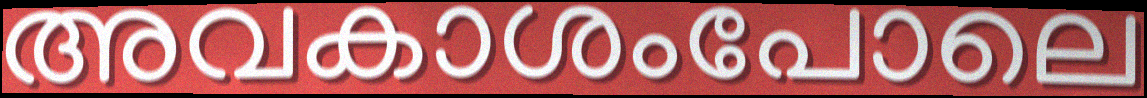
അവകാശംപോലെ